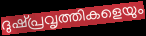
ദുഷ്പ്രവൃത്തികളെയും